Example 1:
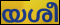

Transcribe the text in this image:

യശീ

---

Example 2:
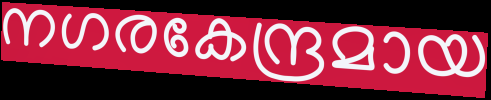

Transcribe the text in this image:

നഗരകേന്ദ്രമായ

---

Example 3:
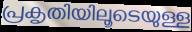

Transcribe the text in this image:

പ്രകൃതിയിലൂടെയുള്ള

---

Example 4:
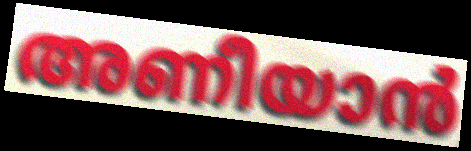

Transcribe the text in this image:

അണീയാൻ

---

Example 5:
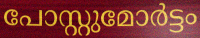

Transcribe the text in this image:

പോസ്റ്റുമോർട്ടം